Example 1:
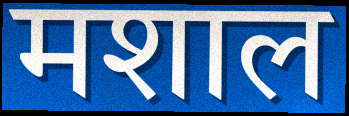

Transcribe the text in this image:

मशाल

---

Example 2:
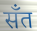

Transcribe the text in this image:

सँत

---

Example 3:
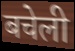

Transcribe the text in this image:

बचेली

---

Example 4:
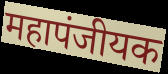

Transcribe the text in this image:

महापंजीयक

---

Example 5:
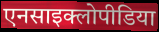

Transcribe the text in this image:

एनसाइक्लोपीडिया